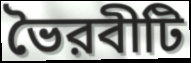
ভৈরবীটি